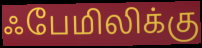
ஃபேமிலிக்கு